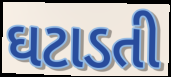
ઘટાડતી